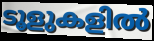
ടൂളുകളിൽ